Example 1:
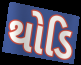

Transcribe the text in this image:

થોડિ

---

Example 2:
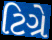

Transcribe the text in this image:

ટિગ્રે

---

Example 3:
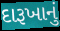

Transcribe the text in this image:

દારૂખાનું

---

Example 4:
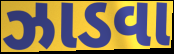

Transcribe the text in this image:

ઝાડવા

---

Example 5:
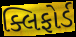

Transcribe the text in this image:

ક્લિફોર્ડ